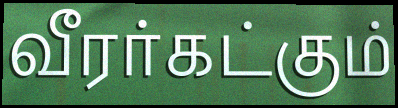
வீரர்கட்கும்